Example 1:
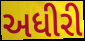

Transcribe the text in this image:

અધીરી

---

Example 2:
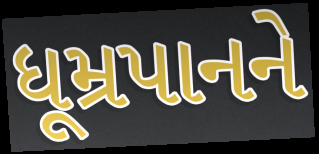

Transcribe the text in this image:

ધૂમ્રપાનને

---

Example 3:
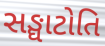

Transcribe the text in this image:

સઙ્ઘાટોતિ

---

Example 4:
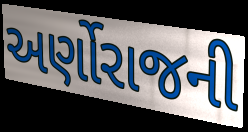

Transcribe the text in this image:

અર્ણોરાજની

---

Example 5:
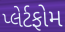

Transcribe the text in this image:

પ્લેર્ટફોમ